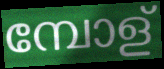
മ്പോള്